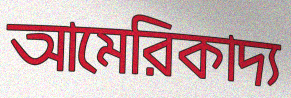
আমেরিকাদ্য